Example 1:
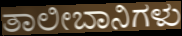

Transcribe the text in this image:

ತಾಲೀಬಾನಿಗಳು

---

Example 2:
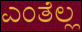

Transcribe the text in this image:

ಎಂತೆಲ್ಲ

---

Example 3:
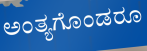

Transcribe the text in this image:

ಅಂತ್ಯಗೊಂಡರೂ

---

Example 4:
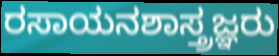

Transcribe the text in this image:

ರಸಾಯನಶಾಸ್ತ್ರಜ್ಞರು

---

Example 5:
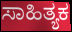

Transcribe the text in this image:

ಸಾಹಿತ್ಯಕ